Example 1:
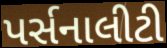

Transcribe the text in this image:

પર્સનાલીટી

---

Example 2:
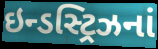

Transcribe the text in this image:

ઇન્ડસ્ટ્રિઝનાં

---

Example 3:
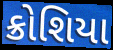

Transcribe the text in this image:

ક્રોશિયા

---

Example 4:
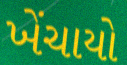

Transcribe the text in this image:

ખેંચાયો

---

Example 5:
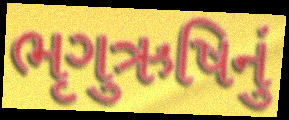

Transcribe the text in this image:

ભૃગુઋષિનું